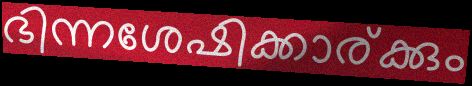
ഭിന്നശേഷിക്കാര്ക്കും